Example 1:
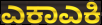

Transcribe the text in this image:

ಎಕಾಎಕಿ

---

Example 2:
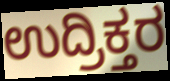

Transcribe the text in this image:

ಉದ್ರಿಕ್ತರ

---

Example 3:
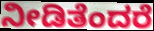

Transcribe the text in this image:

ನೀಡಿತೆಂದರೆ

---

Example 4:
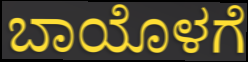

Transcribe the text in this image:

ಬಾಯೊಳಗೆ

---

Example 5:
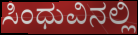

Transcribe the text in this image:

ಸಿಂಧುವಿನಲ್ಲಿ